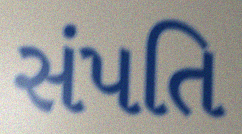
સંપતિ